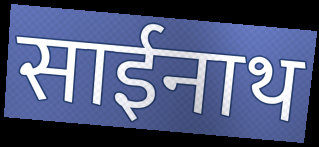
साईनाथ